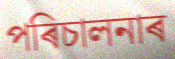
পৰিচালনাৰ